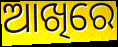
ଆଖିରେ